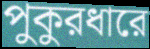
পুকুরধারে